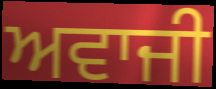
ਅਵਾਜੀ